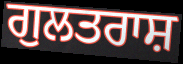
ਗੁਲਤਰਾਸ਼